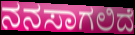
ನನಸಾಗಲಿದೆ